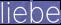
liebe